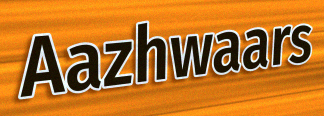
Aazhwaars